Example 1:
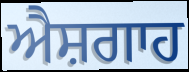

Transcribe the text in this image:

ਐਸ਼ਗਾਹ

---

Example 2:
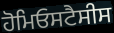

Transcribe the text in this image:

ਹੋਮਿਓਸਟੈਸੀਸ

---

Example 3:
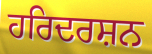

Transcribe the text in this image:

ਹਰਿਦਰਸ਼ਨ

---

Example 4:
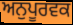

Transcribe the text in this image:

ਅਨੁਪੂਰਵਕ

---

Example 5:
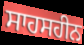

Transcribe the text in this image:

ਸਾਹਸਹੀਨ